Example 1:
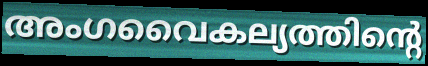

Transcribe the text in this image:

അംഗവൈകല്യത്തിന്റെ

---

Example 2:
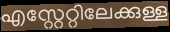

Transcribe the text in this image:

എസ്റ്റേറ്റിലേക്കുള്ള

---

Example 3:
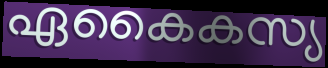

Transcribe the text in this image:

ഏകൈകസ്യ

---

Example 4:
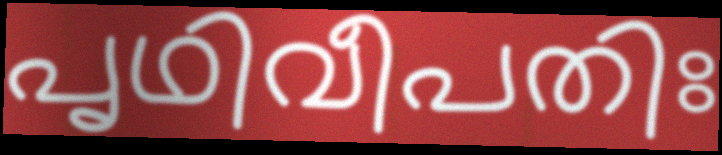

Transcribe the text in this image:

പൃഥിവീപതിഃ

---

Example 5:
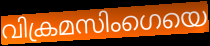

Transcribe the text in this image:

വിക്രമസിംഗെയെ